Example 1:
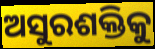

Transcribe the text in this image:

ଅସୁରଶକ୍ତିକୁ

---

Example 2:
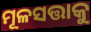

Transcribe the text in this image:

ମୂଳସତ୍ତାକୁ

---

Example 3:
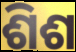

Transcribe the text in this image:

ଶିଶ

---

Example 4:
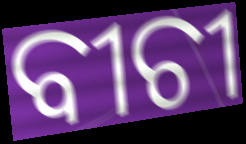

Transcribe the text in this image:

ବୀଚୀ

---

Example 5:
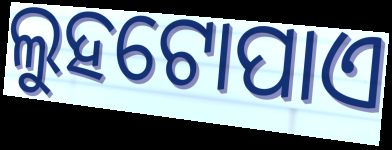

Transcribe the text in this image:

ଲୁହଟୋପାଏ